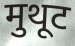
मुथूट